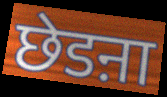
छेडऩा